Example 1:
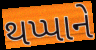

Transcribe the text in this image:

થપ્પાને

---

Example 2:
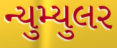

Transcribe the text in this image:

ન્યુમ્યુલર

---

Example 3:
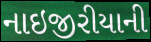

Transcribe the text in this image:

નાઇજીરીયાની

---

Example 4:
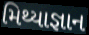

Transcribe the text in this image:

મિથ્યાજ્ઞાન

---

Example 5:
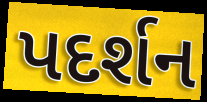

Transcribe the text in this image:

પદર્શન